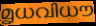
മൃധവിധൗ